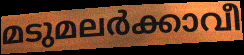
മടുമലർക്കാവീ